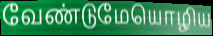
வேண்டுமேயொழிய